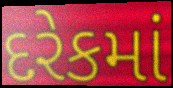
દરેકમાં